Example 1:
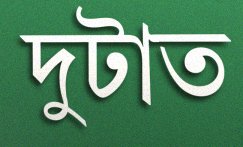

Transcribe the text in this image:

দুটাত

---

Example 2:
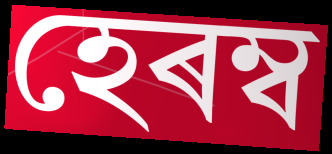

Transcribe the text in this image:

হেৰম্ব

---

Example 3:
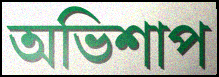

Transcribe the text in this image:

অভিশাপ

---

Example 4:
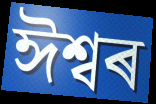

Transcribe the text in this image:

ঈশ্বৰ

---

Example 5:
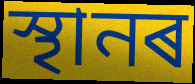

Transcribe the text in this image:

স্থানৰ